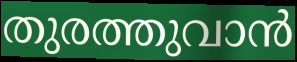
തുരത്തുവാൻ